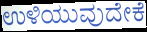
ಉಳಿಯುವುದೇಕೆ